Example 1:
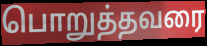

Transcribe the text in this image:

பொறுத்தவரை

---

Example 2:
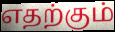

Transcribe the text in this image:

எதற்கும்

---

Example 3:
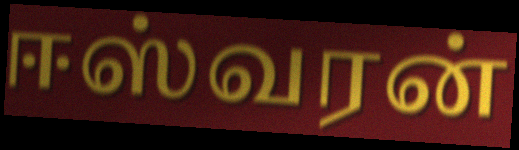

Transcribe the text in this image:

ஈஸ்வரன்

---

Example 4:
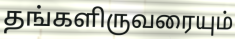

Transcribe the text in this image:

தங்களிருவரையும்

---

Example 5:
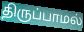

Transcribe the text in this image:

திருப்பாமல்